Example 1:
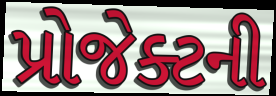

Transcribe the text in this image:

પ્રોજેક્ટની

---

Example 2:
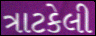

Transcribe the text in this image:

ત્રાટકેલી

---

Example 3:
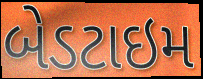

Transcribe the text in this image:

બેડટાઇમ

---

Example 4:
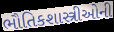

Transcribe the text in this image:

ભૌતિકશાસ્ત્રીઓની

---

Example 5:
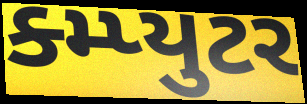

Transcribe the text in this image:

ક્મ્પ્યુટર